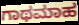
ಗಾಥಮಾಹ